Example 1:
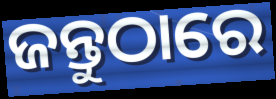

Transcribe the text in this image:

ଜନ୍ତୁଠାରେ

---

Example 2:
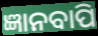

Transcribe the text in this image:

ଜ୍ଞାନବାପି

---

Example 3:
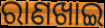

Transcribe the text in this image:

ରାଣଖାଇ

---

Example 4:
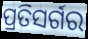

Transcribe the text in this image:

ପ୍ରତିସର୍ଗର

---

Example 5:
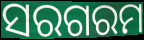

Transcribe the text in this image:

ସରଗରମ